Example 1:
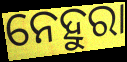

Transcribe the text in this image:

ନେହୁରା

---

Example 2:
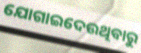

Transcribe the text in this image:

ଯୋଗାଇଦେଉଥିବାରୁ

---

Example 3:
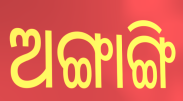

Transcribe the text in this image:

ଅଙ୍ଗାଙ୍ଗି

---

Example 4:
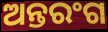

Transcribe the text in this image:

ଅନ୍ତରଂଗ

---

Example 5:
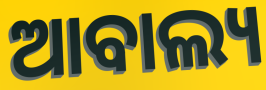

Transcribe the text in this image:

ଆବାଲ୍ୟ